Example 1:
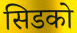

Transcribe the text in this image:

सिडको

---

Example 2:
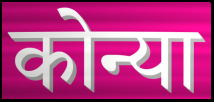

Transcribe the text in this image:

कोन्या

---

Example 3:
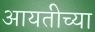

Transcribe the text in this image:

आयतीच्या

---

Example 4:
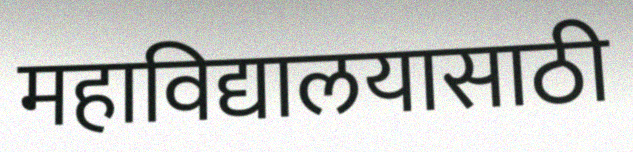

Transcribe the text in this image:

महाविद्यालयासाठी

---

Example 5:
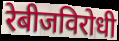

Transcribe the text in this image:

रेबीजविरोधी